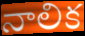
నాలిక